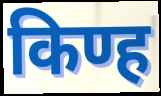
किण्ह